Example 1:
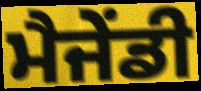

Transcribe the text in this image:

ਮੈਜੇਂਡੀ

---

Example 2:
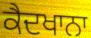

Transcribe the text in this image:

ਕੈਦਖਾਨਾ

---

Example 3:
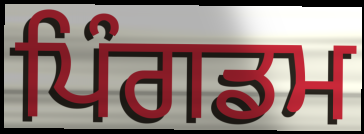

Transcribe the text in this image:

ਪਿੰਗਡਮ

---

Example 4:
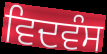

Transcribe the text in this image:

ਵਿਦਵੰਸ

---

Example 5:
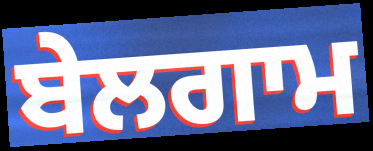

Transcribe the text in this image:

ਬੇਲਗਾਮ